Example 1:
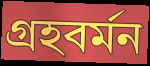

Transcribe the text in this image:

গ্রহবর্মন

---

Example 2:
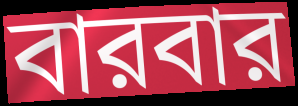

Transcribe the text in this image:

বারবার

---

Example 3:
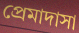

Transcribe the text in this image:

প্রেমাদাসা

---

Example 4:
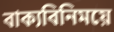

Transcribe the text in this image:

বাক্যবিনিময়ে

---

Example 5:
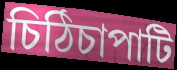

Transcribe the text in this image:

চিঠিচাপাটি